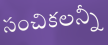
సంచికలన్నీ